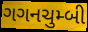
ગગનચુમ્બી